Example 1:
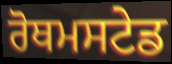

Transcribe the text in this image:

ਰੋਥਮਸਟੇਡ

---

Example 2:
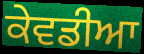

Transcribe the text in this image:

ਕੇਵਡੀਆ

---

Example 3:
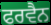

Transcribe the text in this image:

ਫਰਵੈਨ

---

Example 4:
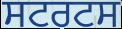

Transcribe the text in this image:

ਸਟਰਟਸ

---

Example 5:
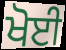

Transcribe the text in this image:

ਖੋਈ